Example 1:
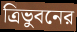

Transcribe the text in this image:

ত্রিভুবনের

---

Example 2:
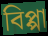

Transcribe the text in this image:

বিপ্পা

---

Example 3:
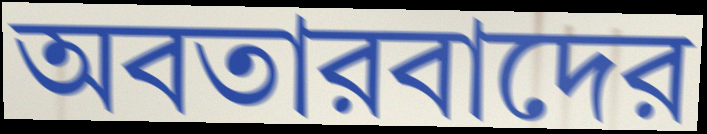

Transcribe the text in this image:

অবতারবাদের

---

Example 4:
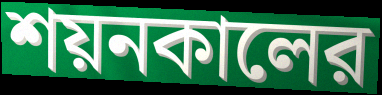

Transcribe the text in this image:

শয়নকালের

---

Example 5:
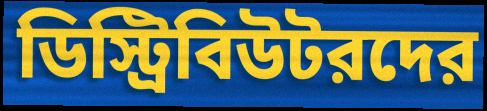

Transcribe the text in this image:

ডিস্ট্রিবিউটরদের